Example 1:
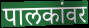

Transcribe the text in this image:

पालकांवर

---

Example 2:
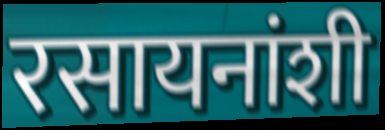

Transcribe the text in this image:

रसायनांशी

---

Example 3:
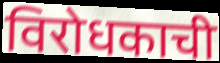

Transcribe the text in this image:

विरोधकाची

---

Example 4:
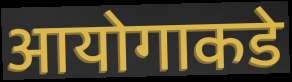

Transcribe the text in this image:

आयोगाकडे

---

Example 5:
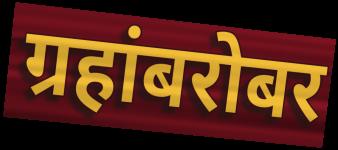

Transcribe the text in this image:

ग्रहांबरोबर